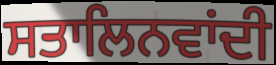
ਸਤਾਲਿਨਵਾਂਦੀ